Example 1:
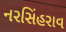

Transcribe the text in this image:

નરસિંહરાવ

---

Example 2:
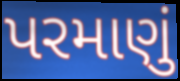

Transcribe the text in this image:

પરમાણું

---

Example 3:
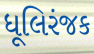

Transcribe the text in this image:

ધૂલિરંજક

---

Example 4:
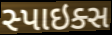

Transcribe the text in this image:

સ્પાઇક્સ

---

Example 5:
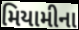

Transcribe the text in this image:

મિયામીના